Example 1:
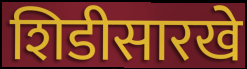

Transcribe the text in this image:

शिडीसारखे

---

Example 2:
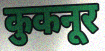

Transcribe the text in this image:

कुकनूर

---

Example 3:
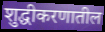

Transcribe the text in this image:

शुद्धीकरणातील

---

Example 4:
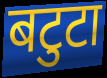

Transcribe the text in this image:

बटुटा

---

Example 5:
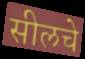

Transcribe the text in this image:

सीलचे